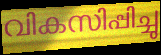
വികസിപ്പിച്ചു